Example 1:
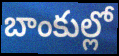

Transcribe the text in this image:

బాంకుల్లో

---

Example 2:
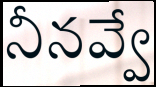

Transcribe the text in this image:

నీనవ్వే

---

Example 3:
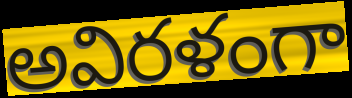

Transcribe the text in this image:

అవిరళంగా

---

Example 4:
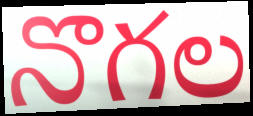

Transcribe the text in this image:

నొగల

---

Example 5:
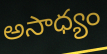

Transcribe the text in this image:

అసాధ్యం